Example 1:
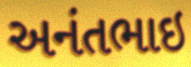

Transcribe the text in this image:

અનંતભાઇ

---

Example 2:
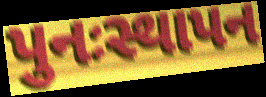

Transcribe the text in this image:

પુનઃસ્થાપન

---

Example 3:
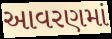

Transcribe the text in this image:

આવરણમાં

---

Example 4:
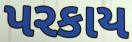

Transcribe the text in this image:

પરકાય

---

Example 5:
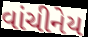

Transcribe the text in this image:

વાંચીનેય